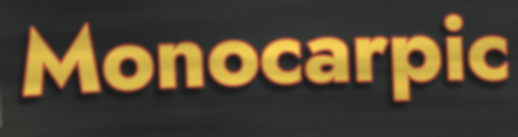
Monocarpic